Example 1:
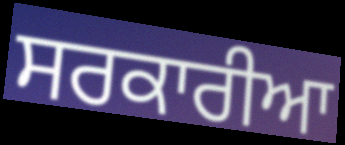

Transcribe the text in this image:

ਸਰਕਾਰੀਆ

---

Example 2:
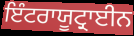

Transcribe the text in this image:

ਇੰਟਰਾਯੂਟ੍ਰਾਈਨ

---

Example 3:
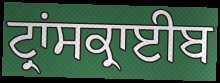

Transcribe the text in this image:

ਟ੍ਰਾਂਸਕ੍ਰਾਈਬ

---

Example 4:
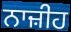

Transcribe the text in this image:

ਨਾਜ਼ੀਹ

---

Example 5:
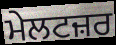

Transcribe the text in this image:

ਮੇਲਟਜ਼ਰ